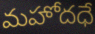
మహోదధే